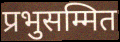
प्रभुसम्मित